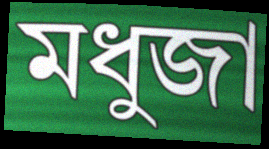
মধুজা